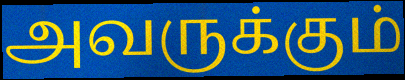
அவருக்கும்